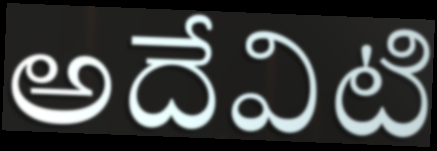
అదేవిటి